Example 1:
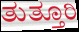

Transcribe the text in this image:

ತುತ್ತೂರಿ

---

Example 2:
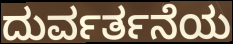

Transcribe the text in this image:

ದುರ್ವರ್ತನೆಯ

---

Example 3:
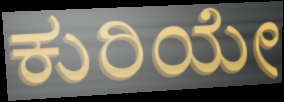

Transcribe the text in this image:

ಕುರಿಯೇ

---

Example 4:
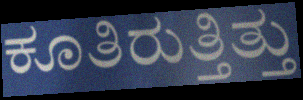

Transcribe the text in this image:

ಕೂತಿರುತ್ತಿತ್ತು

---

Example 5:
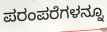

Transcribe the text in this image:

ಪರಂಪರೆಗಳನ್ನೂ